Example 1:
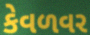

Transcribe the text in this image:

કેવળવર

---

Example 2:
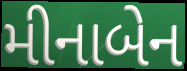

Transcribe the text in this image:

મીનાબેન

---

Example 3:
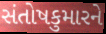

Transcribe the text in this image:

સંતોષકુમારને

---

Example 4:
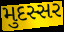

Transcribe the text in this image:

મુદસ્સર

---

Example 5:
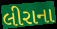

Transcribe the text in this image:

લીરાના